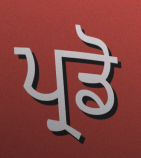
ਪ੍ਰਡੋ